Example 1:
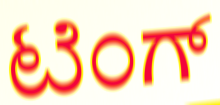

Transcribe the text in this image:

ಟೆಂಗ್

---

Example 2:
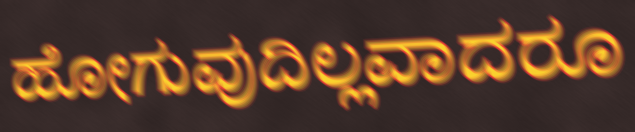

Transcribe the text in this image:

ಹೋಗುವುದಿಲ್ಲವಾದರೂ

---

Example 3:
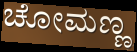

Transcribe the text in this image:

ಚೋಮಣ್ಣ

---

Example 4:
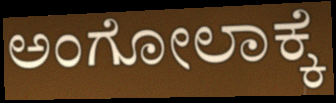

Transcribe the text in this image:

ಅಂಗೋಲಾಕ್ಕೆ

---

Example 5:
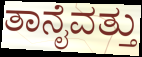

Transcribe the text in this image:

ತಾನೈವತ್ತು